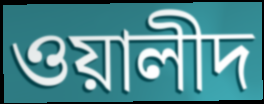
ওয়ালীদ